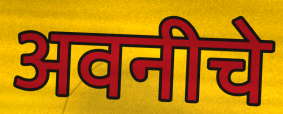
अवनीचे